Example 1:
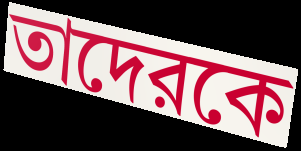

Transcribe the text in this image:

তাদেরকে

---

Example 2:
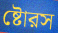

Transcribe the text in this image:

ষ্টোরস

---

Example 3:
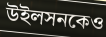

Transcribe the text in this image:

উইলসনকেও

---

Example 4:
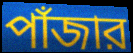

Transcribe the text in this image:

পাঁজার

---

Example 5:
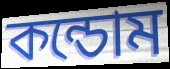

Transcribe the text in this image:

কন্ডোম